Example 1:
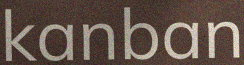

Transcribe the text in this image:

kanban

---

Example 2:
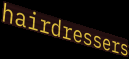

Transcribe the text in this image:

hairdressers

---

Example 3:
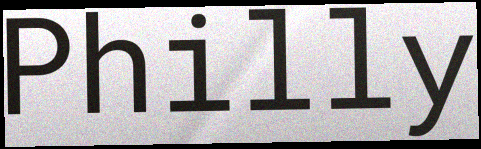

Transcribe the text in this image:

Philly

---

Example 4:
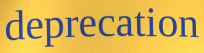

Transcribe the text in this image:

deprecation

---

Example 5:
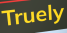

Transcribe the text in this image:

Truely